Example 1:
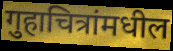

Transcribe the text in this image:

गुहाचित्रांमधील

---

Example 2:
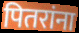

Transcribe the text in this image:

पितरांना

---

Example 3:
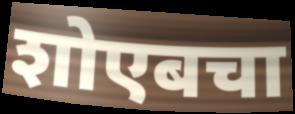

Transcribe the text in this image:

शोएबचा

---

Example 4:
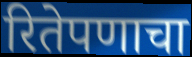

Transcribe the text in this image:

रितेपणाचा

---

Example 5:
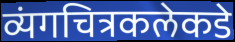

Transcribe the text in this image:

व्यंगचित्रकलेकडे